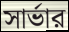
সার্ভার